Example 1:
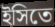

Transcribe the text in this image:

ইসিতে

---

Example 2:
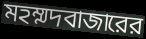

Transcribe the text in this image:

মহম্মদবাজারের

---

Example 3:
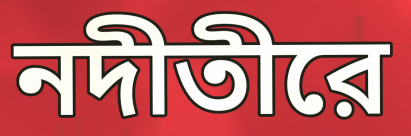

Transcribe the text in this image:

নদীতীরে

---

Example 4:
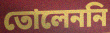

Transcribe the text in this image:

তোলেননি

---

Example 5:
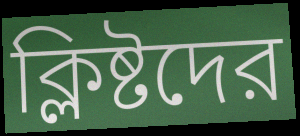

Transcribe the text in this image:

ক্লিষ্টদের